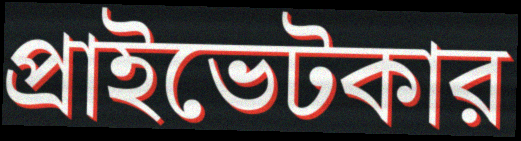
প্রাইভেটকার